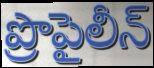
ప్రొపైలీన్